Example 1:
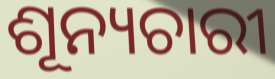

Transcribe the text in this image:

ଶୂନ୍ୟଚାରୀ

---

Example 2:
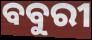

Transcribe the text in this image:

ବବୁରୀ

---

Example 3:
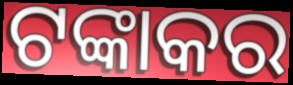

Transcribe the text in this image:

ଟଙ୍କାକର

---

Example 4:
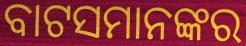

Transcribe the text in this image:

ବାଟସମାନଙ୍କର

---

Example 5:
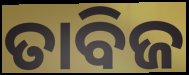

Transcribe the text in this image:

ତାବିଜ